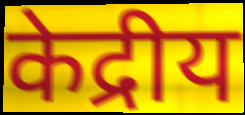
केद्रीय